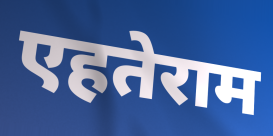
एहतेराम